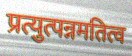
प्रत्युत्पन्नमतित्व